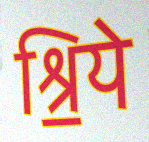
श्रि॒ये